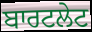
ਬਾਰਟਲੇਟ